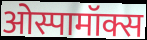
ओस्पामॉक्स